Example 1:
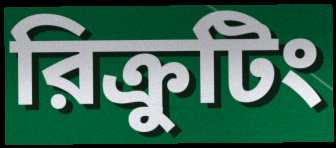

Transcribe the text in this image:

রিক্রুটিং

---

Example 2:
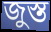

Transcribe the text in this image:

জুস্ত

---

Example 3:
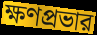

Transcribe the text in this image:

ক্ষণপ্রভার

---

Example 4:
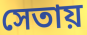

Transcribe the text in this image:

সেতায়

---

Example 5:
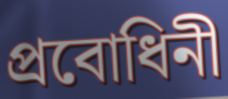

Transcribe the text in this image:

প্রবোধিনী